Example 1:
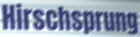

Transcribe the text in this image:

Hirschsprung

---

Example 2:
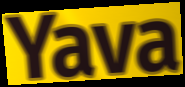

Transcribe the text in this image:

Yava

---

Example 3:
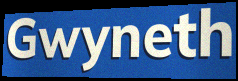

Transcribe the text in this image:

Gwyneth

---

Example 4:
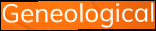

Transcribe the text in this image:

Geneological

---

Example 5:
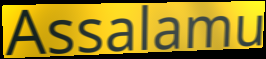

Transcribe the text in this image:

Assalamu